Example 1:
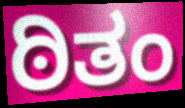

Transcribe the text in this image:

ಠಿತಂ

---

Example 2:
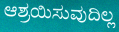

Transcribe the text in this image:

ಆಶ್ರಯಿಸುವುದಿಲ್ಲ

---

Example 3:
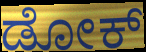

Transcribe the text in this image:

ಡೋಕ್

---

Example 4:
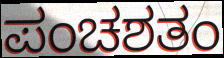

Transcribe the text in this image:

ಪಂಚಶತಂ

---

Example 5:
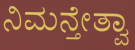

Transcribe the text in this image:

ನಿಮನ್ತೇತ್ವಾ